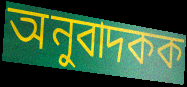
অনুবাদকক